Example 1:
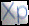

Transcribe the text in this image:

Xp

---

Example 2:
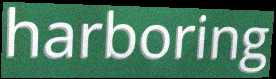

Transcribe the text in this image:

harboring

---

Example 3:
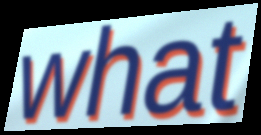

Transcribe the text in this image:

what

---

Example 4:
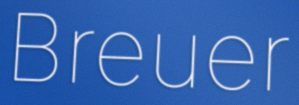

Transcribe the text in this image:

Breuer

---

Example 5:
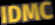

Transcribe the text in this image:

IDMC